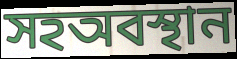
সহঅবস্থান